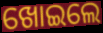
ଖୋଇଲେ